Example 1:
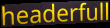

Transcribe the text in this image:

headerfull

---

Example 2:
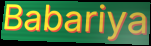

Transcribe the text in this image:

Babariya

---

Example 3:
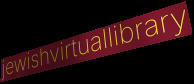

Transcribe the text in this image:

jewishvirtuallibrary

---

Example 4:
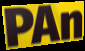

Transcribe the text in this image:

PAn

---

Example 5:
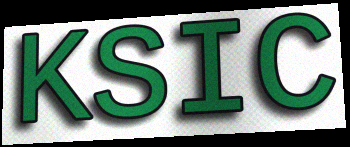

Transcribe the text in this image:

KSIC